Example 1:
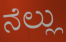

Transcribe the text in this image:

ನೆಲ್ಲು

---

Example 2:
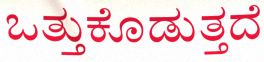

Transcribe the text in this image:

ಒತ್ತುಕೊಡುತ್ತದೆ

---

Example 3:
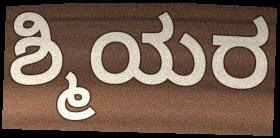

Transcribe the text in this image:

ಶ್ಮಿಯರ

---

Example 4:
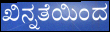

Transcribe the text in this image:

ಖಿನ್ನತೆಯಿಂದ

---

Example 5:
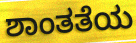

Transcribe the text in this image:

ಶಾಂತತೆಯ